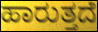
ಹಾರುತ್ತದೆ